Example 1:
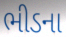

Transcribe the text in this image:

ભીડના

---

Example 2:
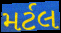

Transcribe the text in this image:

મર્ટલ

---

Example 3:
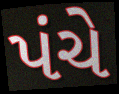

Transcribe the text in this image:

પંચે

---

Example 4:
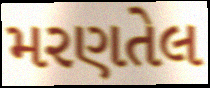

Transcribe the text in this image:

મરણતેલ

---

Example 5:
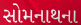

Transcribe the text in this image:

સોમનાથના